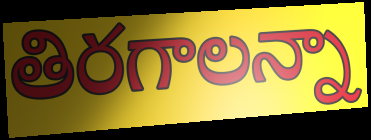
తిరగాలన్నా